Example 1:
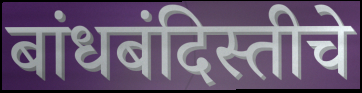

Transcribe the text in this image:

बांधबंदिस्तीचे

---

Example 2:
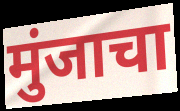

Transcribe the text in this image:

मुंजाचा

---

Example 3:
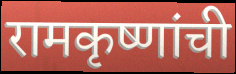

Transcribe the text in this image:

रामकृष्णांची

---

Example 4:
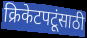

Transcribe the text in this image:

क्रिकेटपटूंसाठी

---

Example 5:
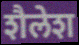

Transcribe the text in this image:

शैलेश